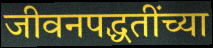
जीवनपद्धतींच्या